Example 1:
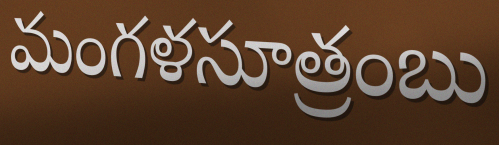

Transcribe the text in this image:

మంగళసూత్రంబు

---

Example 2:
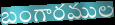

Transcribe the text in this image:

బంగారముల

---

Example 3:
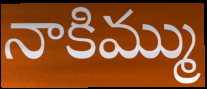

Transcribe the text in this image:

నాకిమ్ము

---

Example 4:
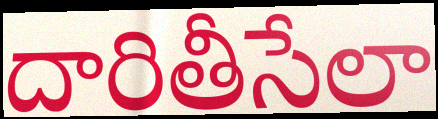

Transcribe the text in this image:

దారితీసేలా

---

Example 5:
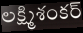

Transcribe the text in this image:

లక్ష్మిశంకర్